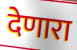
देणारा